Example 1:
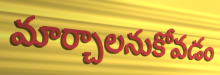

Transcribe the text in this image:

మార్చాలనుకోవడం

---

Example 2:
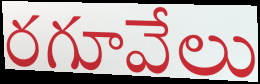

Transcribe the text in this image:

రగూవేలు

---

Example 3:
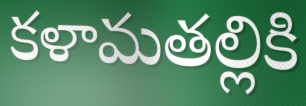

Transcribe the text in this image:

కళామతల్లికి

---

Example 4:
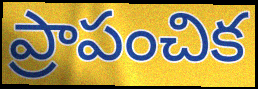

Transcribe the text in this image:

ప్రాపంచిక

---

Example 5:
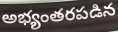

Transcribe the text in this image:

అభ్యంతరపడిన